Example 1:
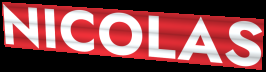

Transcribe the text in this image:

NICOLAS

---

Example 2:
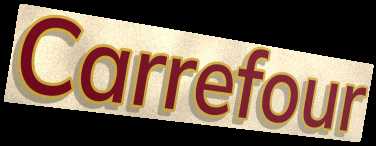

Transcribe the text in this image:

Carrefour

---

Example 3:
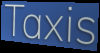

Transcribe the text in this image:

Taxis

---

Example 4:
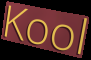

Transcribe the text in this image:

Kool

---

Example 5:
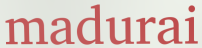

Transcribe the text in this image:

madurai